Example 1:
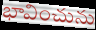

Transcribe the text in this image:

భావించును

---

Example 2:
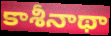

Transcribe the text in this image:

కాశీనాథా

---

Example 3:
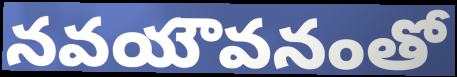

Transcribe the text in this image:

నవయౌవనంతో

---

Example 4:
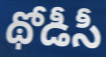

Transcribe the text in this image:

థోడీసీ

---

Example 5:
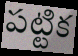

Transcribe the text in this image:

పట్టిక